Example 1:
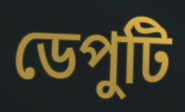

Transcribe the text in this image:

ডেপুটি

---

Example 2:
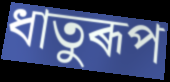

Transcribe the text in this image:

ধাতুৰূপ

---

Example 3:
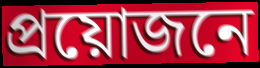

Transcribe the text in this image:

প্ৰয়োজনে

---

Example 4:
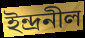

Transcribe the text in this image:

ইন্দ্ৰনীল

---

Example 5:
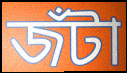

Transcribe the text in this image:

জঁটা